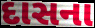
દાસના